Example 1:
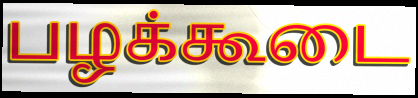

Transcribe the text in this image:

பழக்கூடை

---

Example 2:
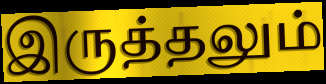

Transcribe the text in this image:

இருத்தலும்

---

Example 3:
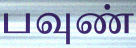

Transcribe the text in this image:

பவுண்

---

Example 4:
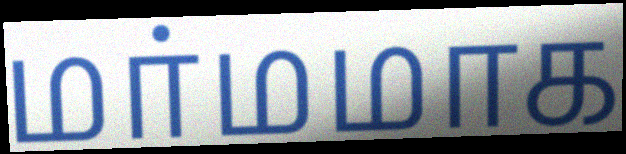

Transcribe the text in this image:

மர்மமாக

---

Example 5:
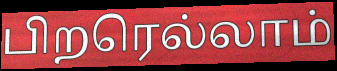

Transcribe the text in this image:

பிறரெல்லாம்